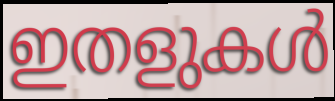
ഇതളുകൾ